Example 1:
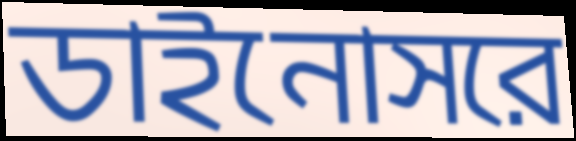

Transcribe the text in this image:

ডাইনোসরে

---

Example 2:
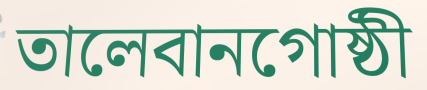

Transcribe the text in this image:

তালেবানগোষ্ঠী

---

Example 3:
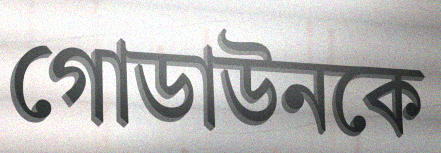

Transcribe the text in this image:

গোডাউনকে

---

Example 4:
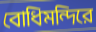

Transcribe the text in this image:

বোধিমন্দিরে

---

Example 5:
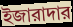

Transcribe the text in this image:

ইজারাদার